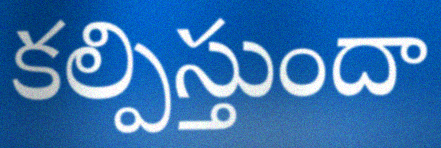
కల్పిస్తుందా